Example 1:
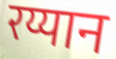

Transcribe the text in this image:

रय्यान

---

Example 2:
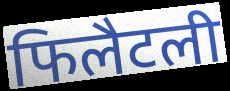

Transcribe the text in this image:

फिलैटली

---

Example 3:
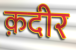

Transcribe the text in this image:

क़दीर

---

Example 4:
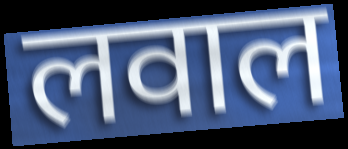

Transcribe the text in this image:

लवाल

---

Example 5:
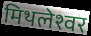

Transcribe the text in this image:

मिथलेश्वर